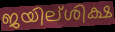
ജയില്ശിക്ഷ